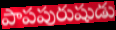
పాపపురుషుడు